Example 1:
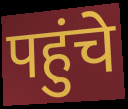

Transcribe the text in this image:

पहुंचे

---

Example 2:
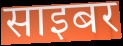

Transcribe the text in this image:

साइबर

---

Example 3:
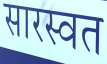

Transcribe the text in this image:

सारस्वत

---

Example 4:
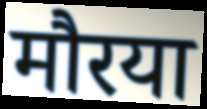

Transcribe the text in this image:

मौरया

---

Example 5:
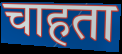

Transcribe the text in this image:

चाहता